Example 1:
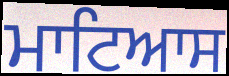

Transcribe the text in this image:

ਮਾਟਿਆਸ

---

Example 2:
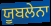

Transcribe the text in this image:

ਯੂਬਲੇਨਾ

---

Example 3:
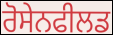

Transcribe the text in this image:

ਰੋਸੇਨਫੀਲਡ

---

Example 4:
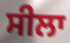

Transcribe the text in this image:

ਸੀਲਾ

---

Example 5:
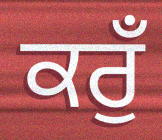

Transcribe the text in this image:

ਕਰੁਁ